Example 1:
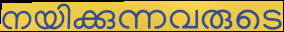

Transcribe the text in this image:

നയിക്കുന്നവരുടെ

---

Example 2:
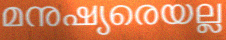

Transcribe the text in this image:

മനുഷ്യരെയല്ല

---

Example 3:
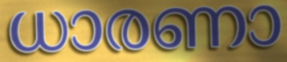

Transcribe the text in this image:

ധാരണാ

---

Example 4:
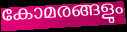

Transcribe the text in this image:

കോമരങ്ങളും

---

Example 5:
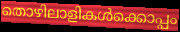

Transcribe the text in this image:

തൊഴിലാളികൾക്കൊപ്പം